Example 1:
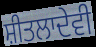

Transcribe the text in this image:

ਸ਼ੀਤਲਾਦੇਵੀ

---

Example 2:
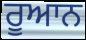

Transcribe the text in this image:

ਰੂਆਨ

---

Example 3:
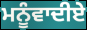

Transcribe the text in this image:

ਮਨੂੰਵਾਦੀਏ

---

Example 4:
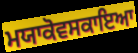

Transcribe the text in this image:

ਮਯਾਕੋਵਸਕਾਇਆ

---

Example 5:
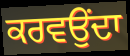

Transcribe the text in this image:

ਕਰਵਉਂਦਾ